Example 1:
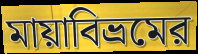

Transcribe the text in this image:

মায়াবিভ্রমের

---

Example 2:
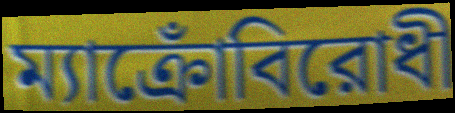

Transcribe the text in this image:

ম্যাক্রোঁবিরোধী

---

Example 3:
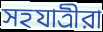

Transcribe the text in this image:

সহযাত্রীরা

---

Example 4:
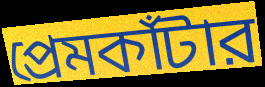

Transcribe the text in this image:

প্রেমকাঁটার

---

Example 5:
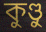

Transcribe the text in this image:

কুণ্ডু